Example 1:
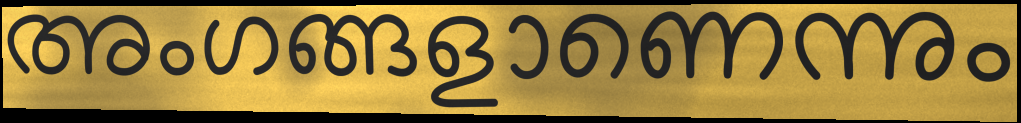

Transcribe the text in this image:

അംഗങ്ങളാണെന്നും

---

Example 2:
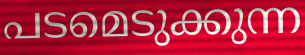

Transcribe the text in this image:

പടമെടുക്കുന്ന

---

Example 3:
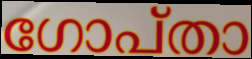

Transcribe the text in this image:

ഗോപ്താ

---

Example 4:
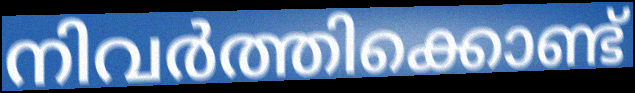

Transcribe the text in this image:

നിവർത്തിക്കൊണ്ട്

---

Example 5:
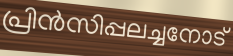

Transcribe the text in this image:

പ്രിൻസിപ്പലച്ചനോട്